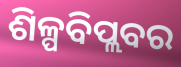
ଶିଳ୍ପବିପ୍ଲବର